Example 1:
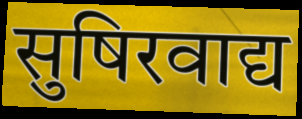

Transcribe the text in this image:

सुषिरवाद्य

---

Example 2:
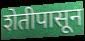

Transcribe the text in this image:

शेतीपासून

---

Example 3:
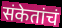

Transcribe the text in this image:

संकेतांचं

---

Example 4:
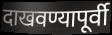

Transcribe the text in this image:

दाखवण्यापूर्वी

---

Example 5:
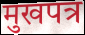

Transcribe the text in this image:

मुखपत्र